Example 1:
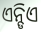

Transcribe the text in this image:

ଏନ୍ଡିଏ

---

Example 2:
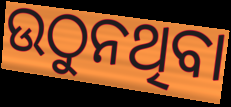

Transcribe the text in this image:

ଉଠୁନଥିବା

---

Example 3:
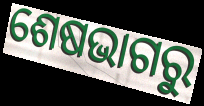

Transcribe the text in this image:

ଶେଷଭାଗରୁ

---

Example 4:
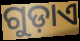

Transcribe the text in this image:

ଗୁଡ଼ାଏ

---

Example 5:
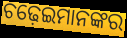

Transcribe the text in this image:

ଚଢ଼େଇମାନଙ୍କର